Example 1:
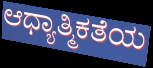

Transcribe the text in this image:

ಆಧ್ಯಾತ್ಮಿಕತೆಯ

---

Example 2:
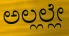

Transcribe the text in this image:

ಅಲ್ಲಲ್ಲೇ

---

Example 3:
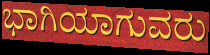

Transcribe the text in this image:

ಭಾಗಿಯಾಗುವರು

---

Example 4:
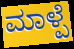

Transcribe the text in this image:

ಮಾಳ್ಪೆ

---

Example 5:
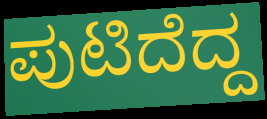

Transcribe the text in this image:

ಪುಟಿದೆದ್ದ